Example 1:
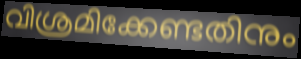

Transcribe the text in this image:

വിശ്രമിക്കേണ്ടതിനും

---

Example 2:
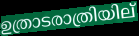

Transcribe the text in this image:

ഉത്രാടരാത്രിയില്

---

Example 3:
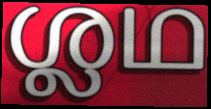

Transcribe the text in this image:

ശ്ലഥ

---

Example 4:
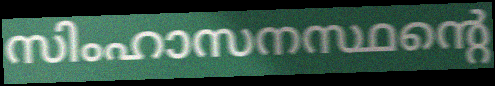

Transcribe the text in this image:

സിംഹാസനസ്ഥന്റെ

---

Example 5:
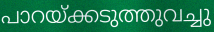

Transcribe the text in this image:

പാറയ്ക്കടുത്തുവച്ചു